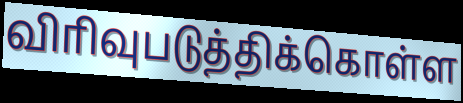
விரிவுபடுத்திக்கொள்ள